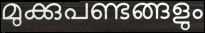
മുക്കുപണ്ടങ്ങളും